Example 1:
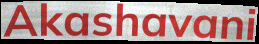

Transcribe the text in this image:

Akashavani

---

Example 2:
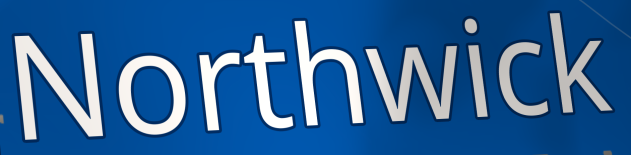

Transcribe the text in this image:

Northwick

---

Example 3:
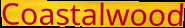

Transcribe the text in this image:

Coastalwood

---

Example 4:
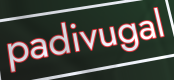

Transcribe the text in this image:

padivugal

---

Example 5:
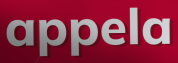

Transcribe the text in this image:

appela